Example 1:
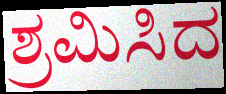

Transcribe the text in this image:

ಶ್ರಮಿಸಿದ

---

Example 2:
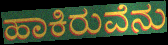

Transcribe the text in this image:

ಹಾಕಿರುವೆನು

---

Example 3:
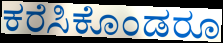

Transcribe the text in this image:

ಕರೆಸಿಕೊಂಡರೂ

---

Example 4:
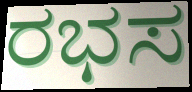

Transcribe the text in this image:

ರಭಸ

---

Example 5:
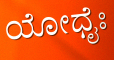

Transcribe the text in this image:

ಯೋಧೈಃ